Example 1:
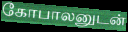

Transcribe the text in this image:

கோபாலனுடன்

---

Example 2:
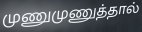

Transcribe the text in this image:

முணுமுணுத்தால்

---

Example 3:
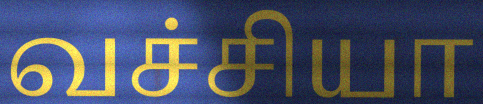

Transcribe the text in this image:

வச்சியா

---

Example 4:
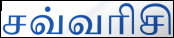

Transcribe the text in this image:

சவ்வரிசி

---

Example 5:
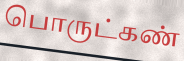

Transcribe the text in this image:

பொருட்கண்